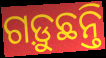
ଗଡ଼ୁଛନ୍ତି